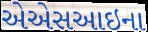
એએસઆઇના